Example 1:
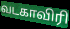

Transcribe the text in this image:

வடகாவிரி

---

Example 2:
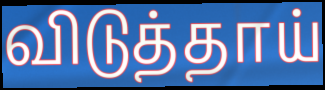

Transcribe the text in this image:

விடுத்தாய்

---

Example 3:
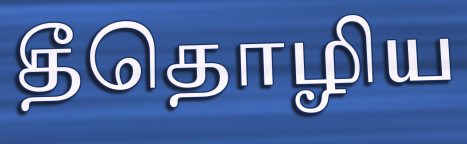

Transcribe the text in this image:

தீதொழிய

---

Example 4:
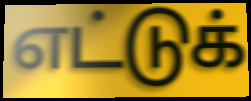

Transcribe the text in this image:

எட்டுக்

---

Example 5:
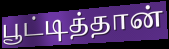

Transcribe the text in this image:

பூட்டித்தான்